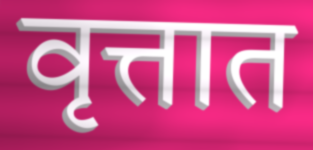
वृत्तात